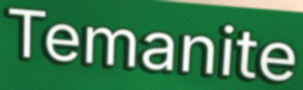
Temanite